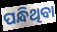
ପନ୍ଧିଥିବା